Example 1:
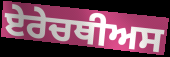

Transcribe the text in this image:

ਏਰੇਚਥੀਅਸ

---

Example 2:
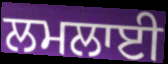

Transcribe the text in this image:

ਲਮਲਾਈ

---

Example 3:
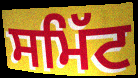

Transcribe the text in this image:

ਸਮਿੱਟ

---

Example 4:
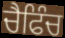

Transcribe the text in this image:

ਚੈਫਿੰਚ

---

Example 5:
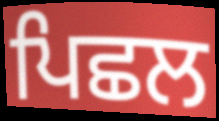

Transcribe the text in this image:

ਪਿਛਲ